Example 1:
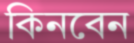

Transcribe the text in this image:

কিনবেন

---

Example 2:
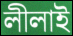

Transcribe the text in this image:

লীলাই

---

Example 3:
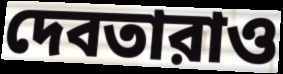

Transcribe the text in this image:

দেবতারাও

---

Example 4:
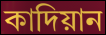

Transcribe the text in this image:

কাদিয়ান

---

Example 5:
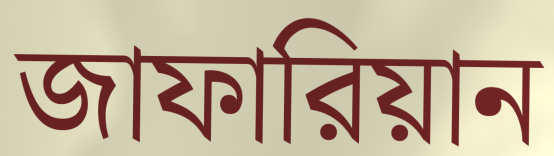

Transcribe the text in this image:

জাফারিয়ান